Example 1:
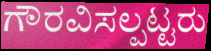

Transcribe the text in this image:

ಗೌರವಿಸಲ್ಪಟ್ಟರು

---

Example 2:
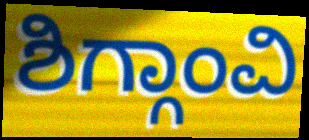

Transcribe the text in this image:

ಶಿಗ್ಗಾಂವಿ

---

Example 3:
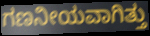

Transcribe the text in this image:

ಗಣನೀಯವಾಗಿತ್ತು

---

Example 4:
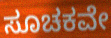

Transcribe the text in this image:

ಸೂಚಕವೇ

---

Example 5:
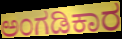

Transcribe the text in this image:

ಅಂಗಡಿಕಾರ